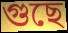
গুছে